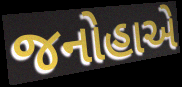
જનોહાએ